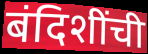
बंदिशींची